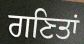
ਗਣਿਤਾਂ